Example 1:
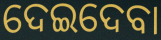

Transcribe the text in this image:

ଦେଇଦେବା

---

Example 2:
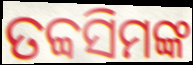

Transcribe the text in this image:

ତବ୍ବସିମଙ୍କ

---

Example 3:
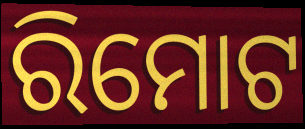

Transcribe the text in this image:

ରିମୋଟ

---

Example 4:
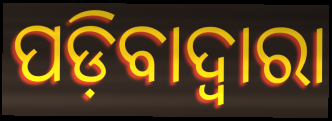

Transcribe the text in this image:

ପଡ଼ିବାଦ୍ୱାରା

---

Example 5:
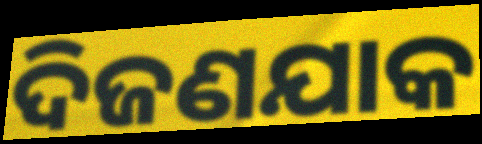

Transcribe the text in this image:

ଦିଜଣଯାକ